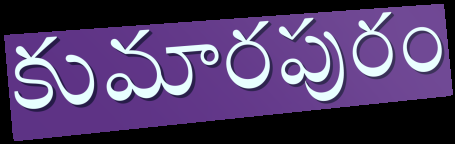
కుమారపురం